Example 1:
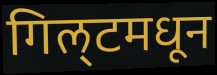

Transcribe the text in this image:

गिल्टमधून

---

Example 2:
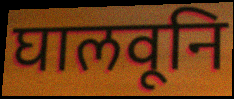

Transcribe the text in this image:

घालवूनि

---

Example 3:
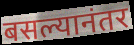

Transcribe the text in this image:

बसल्यानंतर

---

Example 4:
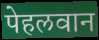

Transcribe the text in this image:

पेहलवान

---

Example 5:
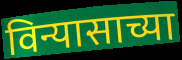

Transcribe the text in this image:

विन्यासाच्या